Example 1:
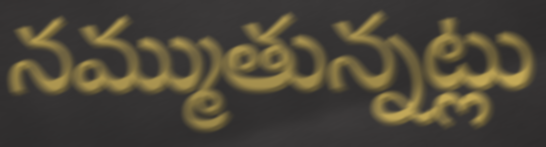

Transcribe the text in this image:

నమ్ముతున్నట్లు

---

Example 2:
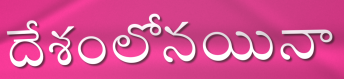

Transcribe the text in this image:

దేశంలోనయినా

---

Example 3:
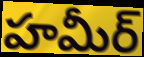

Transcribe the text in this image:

హమీర్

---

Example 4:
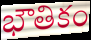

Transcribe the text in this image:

భౌతికం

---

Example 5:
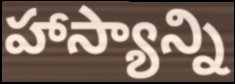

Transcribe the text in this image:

హాస్యాన్ని